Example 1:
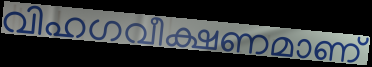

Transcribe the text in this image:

വിഹഗവീക്ഷണമാണ്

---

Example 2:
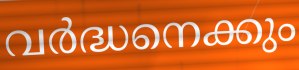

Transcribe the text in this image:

വർദ്ധനെക്കും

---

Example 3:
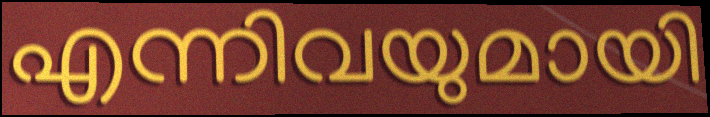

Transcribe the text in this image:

എന്നിവയുമായി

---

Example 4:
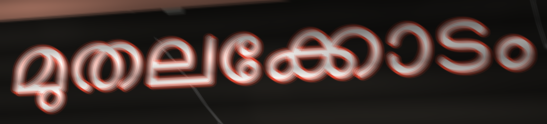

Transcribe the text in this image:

മുതലക്കോടം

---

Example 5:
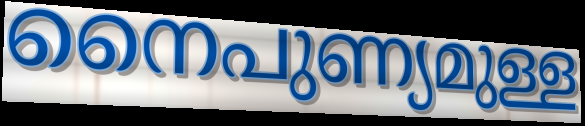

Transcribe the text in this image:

നൈപുണ്യമുള്ള